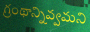
గ్రంథాన్నివ్వమని